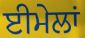
ਈਮੇਲਾਂ